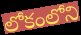
లోకంలోని